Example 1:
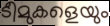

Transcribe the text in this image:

ടീമുകളെയും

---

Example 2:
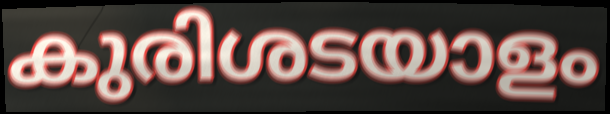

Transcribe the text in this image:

കുരിശടയാളം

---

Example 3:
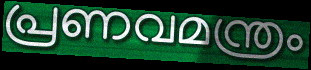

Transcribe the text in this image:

പ്രണവമന്ത്രം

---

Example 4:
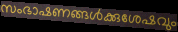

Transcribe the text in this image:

സംഭാഷണങ്ങൾക്കുശേഷവും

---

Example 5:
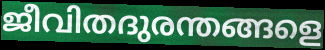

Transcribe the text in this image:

ജീവിതദുരന്തങ്ങളെ